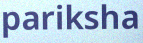
pariksha